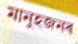
মানুহজনৰ